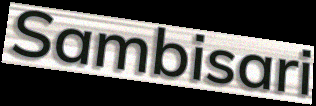
Sambisari